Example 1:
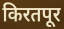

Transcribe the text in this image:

किरतपूर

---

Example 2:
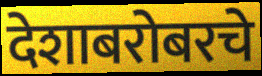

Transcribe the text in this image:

देशाबरोबरचे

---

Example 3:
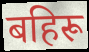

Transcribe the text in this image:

बहिरू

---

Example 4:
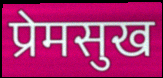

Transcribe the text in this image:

प्रेमसुख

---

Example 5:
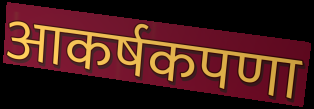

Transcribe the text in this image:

आकर्षकपणा